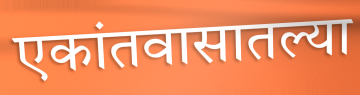
एकांतवासातल्या